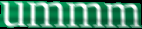
ummm